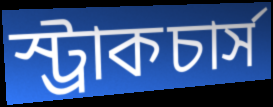
স্ট্রাকচার্স